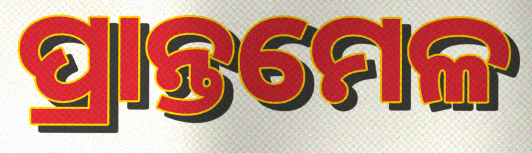
ପ୍ରାନ୍ତମେଳ